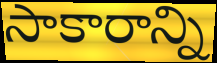
సాకారాన్ని